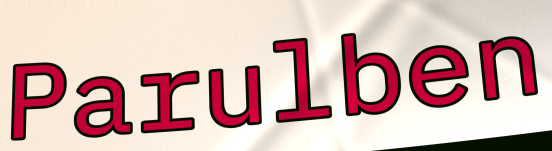
Parulben